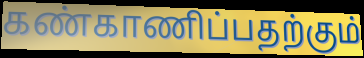
கண்காணிப்பதற்கும்